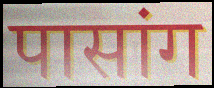
पासांग